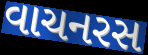
વાચનરસ